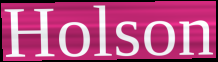
Holson